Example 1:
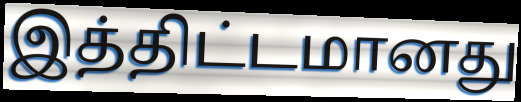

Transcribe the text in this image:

இத்திட்டமானது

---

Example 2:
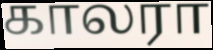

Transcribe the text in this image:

காலரா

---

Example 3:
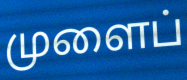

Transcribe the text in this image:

முளைப்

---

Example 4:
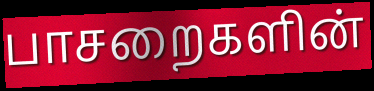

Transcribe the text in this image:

பாசறைகளின்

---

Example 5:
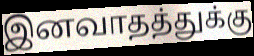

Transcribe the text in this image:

இனவாதத்துக்கு